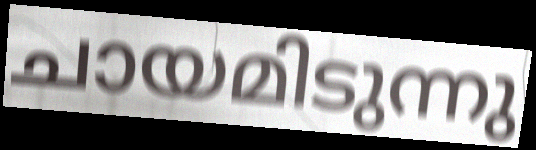
ചായമിടുന്നു